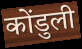
कोंडुली